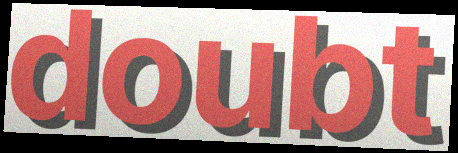
doubt